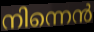
നിന്നെൻ